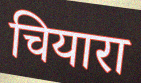
चियारा